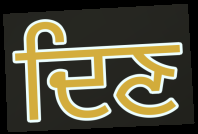
ਦਿਣ